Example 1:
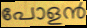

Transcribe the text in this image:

പോളൻ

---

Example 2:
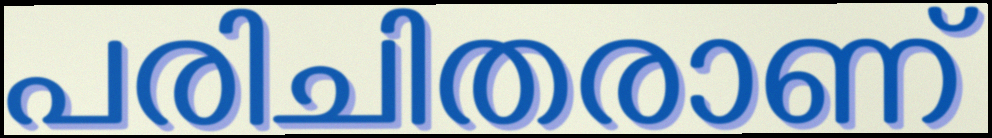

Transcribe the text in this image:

പരിചിതരാണ്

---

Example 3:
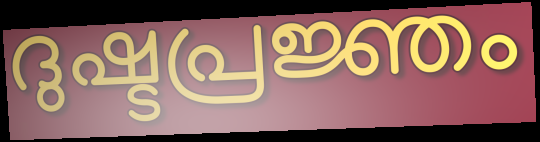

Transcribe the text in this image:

ദുഷ്ടപ്രജ്ഞം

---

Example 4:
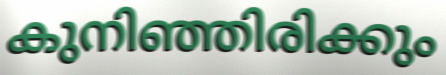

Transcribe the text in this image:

കുനിഞ്ഞിരിക്കും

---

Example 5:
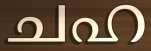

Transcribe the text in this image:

ചഹ